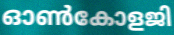
ഓൺകോളജി